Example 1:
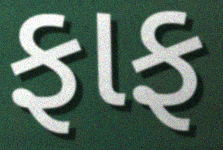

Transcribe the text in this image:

ફાફ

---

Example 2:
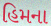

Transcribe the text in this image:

હિમના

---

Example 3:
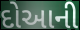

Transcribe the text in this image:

દોઆની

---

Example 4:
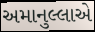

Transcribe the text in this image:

અમાનુલ્લાએ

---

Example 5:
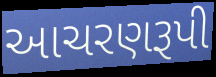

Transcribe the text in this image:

આચરણરૂપી